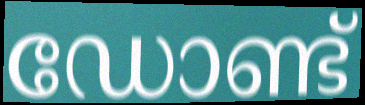
ഡോണ്ട്